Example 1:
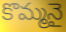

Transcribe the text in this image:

కొమ్మనై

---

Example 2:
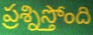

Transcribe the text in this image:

ప్రశ్నిస్తోంది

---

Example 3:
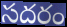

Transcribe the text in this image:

సదరం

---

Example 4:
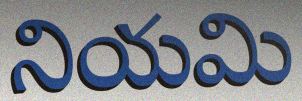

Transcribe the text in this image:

నియమి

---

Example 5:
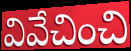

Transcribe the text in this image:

వివేచించి